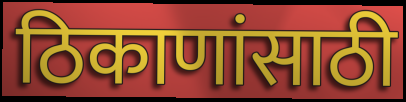
ठिकाणांसाठी